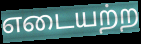
எடையற்ற